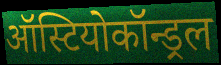
ऑस्टियोकॉन्ड्रल